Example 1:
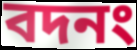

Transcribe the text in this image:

বদনং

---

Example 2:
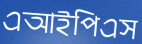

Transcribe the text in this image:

এআইপিএস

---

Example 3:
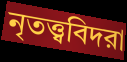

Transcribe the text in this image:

নৃতত্ত্ববিদরা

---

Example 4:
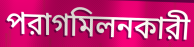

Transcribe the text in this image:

পরাগমিলনকারী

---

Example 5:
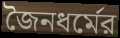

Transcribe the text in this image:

জৈনধর্মের